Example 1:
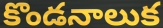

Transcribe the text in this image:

కొండనాలుక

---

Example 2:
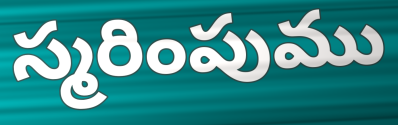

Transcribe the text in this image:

స్మరింపుము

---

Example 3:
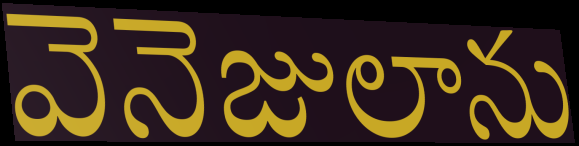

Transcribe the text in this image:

వెనెజులాను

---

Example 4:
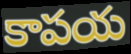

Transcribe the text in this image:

కాపయ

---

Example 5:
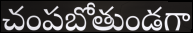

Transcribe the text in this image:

చంపబోతుండగా